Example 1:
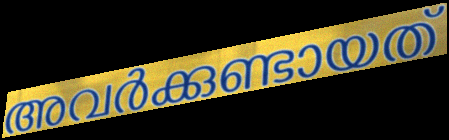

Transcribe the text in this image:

അവർക്കുണ്ടായത്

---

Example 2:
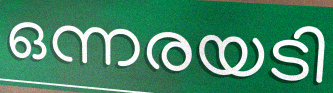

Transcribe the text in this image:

ഒന്നരയടി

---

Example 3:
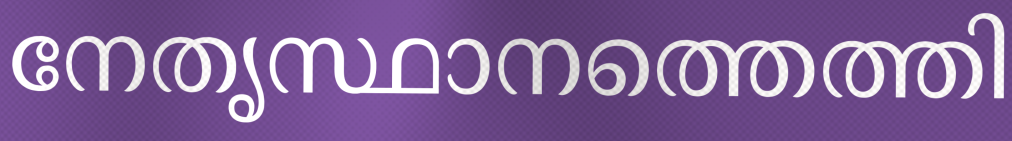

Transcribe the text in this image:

നേതൃസ്ഥാനത്തെത്തി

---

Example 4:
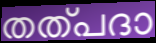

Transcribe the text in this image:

തത്പദാ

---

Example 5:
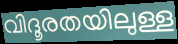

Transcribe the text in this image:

വിദൂരതയിലുള്ള